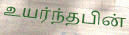
உயர்ந்தபின்